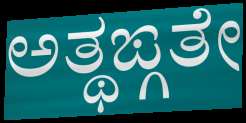
ಅತ್ಥಙ್ಗತೇ